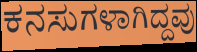
ಕನಸುಗಳಾಗಿದ್ದವು